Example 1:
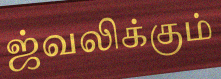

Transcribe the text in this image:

ஜ்வலிக்கும்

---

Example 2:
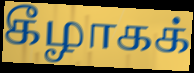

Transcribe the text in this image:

கீழாகக்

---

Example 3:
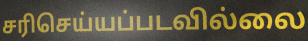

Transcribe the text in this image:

சரிசெய்யப்படவில்லை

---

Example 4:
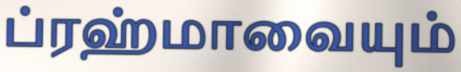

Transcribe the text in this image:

ப்ரஹ்மாவையும்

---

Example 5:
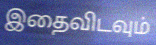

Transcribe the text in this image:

இதைவிடவும்